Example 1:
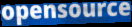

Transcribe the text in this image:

opensource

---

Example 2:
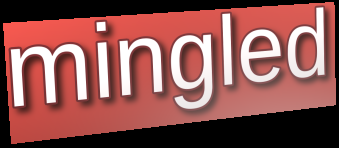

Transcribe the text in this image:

mingled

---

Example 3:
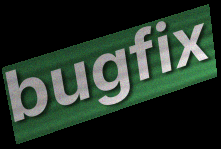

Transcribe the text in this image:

bugfix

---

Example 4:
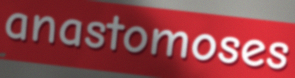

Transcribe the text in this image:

anastomoses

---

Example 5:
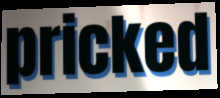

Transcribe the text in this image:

pricked